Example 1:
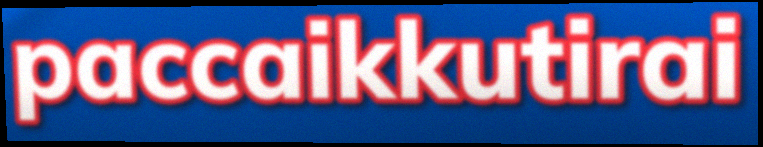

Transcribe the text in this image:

paccaikkutirai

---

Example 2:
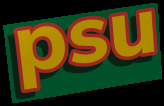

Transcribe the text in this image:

psu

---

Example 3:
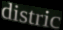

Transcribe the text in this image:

distric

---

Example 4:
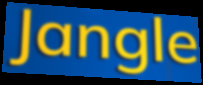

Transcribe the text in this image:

Jangle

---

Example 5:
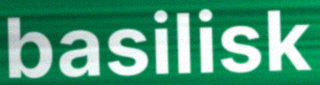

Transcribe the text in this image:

basilisk